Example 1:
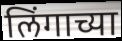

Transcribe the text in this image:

लिंगाच्या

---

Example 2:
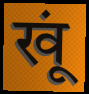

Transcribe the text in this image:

खूं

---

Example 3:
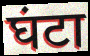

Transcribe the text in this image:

घंटा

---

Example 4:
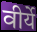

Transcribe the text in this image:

वीर्ये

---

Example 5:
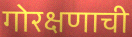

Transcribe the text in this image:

गोरक्षणाची